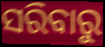
ସରିବାରୁ